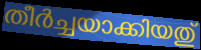
തീർച്ചയാക്കിയതു്